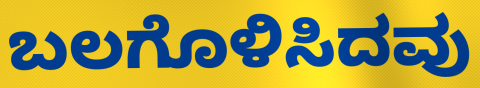
ಬಲಗೊಳಿಸಿದವು